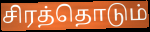
சிரத்தொடும்